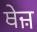
ਥੇਜ਼